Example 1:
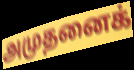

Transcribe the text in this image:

அமுதனைக்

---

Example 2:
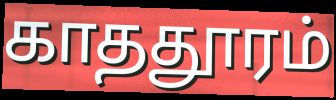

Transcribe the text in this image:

காததூரம்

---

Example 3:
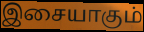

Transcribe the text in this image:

இசையாகும்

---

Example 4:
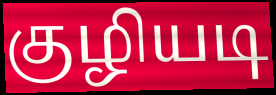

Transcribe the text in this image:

குழியடி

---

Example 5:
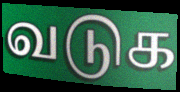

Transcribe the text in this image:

வடுக